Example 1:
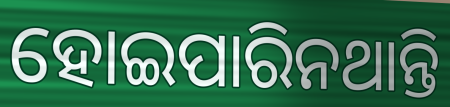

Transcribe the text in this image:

ହୋଇପାରିନଥାନ୍ତି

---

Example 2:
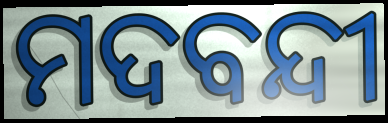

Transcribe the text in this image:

ମଦବନ୍ଦୀ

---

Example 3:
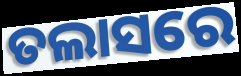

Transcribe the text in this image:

ତଲାସରେ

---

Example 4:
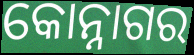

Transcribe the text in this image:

କୋନ୍ନାଗର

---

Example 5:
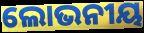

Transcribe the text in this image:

ଲୋଭନୀୟ